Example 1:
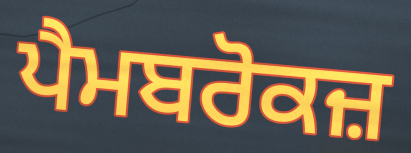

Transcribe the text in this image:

ਪੈਮਬਰੋਕਜ਼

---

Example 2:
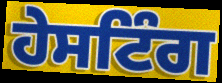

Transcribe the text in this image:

ਹੇਸਟਿੰਗ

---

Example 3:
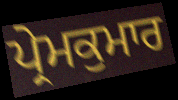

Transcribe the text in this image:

ਪ੍ਰੇਮਕੁਮਾਰ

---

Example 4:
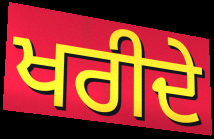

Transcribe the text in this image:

ਖਰੀਦੇ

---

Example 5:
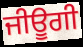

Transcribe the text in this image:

ਜੀਊਗੀ